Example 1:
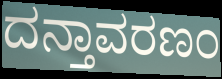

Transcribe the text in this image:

ದನ್ತಾವರಣಂ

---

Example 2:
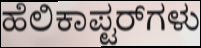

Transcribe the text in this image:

ಹೆಲಿಕಾಪ್ಟರ್‌ಗಳು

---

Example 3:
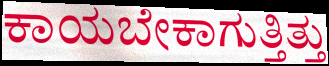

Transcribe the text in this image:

ಕಾಯಬೇಕಾಗುತ್ತಿತ್ತು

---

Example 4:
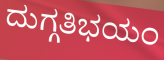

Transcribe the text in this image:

ದುಗ್ಗತಿಭಯಂ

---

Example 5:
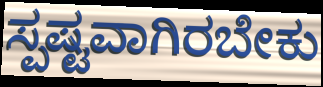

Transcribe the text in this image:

ಸ್ಪಷ್ಟವಾಗಿರಬೇಕು